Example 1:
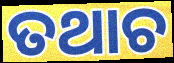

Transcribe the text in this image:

ତଥାଚ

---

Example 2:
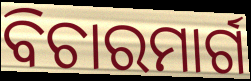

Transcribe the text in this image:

ବିଚାରମାର୍ଗ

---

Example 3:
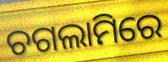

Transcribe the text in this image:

ଚଗଲାମିରେ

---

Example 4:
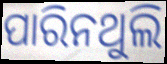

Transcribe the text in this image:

ପାରିନଥୁଲି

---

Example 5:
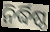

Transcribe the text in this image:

ନିର୍ଦ୍ଧିଷ୍ଠ